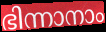
ഭിന്നാനാം